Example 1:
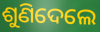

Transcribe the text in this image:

ଶୁଣିଦେଲେ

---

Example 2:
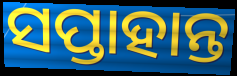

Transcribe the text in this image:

ସପ୍ତାହାନ୍ତ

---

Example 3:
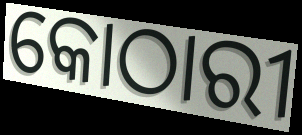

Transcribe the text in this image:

କୋଠାରୀ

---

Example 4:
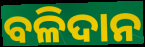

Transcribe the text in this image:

ବଳିଦାନ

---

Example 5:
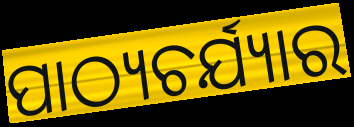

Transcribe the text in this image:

ପାଠ୍ୟଚର୍ଯ୍ୟାର